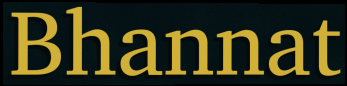
Bhannat